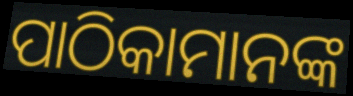
ପାଠିକାମାନଙ୍କ